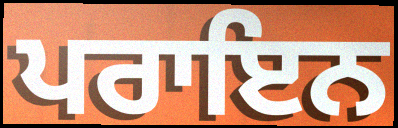
ਪਰਾਇਨ